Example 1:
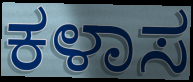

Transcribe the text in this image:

ಕಳಾಸ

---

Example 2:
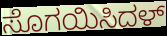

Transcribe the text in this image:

ಸೊಗಯಿಸಿದಳ್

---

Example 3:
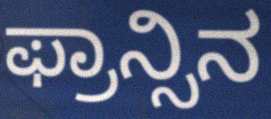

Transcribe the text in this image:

ಫ್ರಾನ್ಸಿನ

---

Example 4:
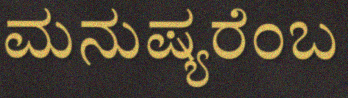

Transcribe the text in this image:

ಮನುಷ್ಯರೆಂಬ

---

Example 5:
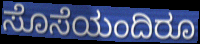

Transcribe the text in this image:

ಸೊಸೆಯಂದಿರೂ